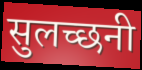
सुलच्छनी